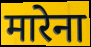
मारेना